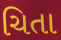
ચિતા